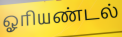
ஓரியண்டல்